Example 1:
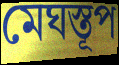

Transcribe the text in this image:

মেঘস্তূপ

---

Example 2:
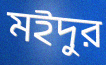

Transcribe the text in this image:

মইদুর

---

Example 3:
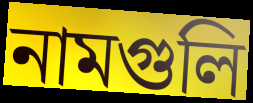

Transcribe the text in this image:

নামগুলি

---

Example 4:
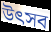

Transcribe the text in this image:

উত্‍সব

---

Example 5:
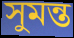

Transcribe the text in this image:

সুমন্ত